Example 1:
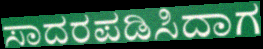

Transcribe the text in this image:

ಸಾದರಪಡಿಸಿದಾಗ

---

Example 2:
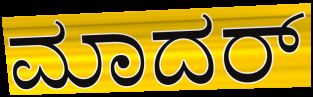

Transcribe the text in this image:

ಮಾದರ್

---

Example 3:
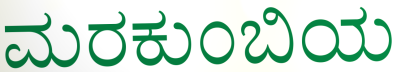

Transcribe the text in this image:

ಮರಕುಂಬಿಯ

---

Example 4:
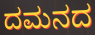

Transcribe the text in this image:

ದಮನದ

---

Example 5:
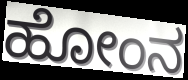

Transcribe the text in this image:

ಹೋಂನ